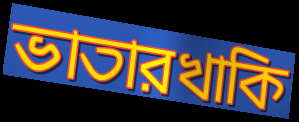
ভাতারখাকি